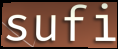
sufi